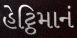
હેટ્ઠિમાનં